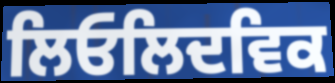
ਲਿਓਲਿਦਵਿਕ